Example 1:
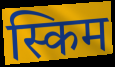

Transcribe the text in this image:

स्किम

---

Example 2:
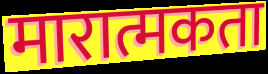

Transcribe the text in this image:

मारात्मकता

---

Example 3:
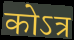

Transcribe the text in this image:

कोऽत्र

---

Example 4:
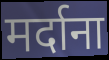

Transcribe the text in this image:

मर्दाना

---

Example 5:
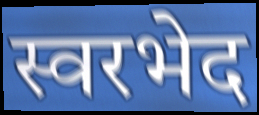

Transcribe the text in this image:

स्वरभेद